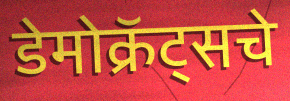
डेमोक्रॅट्सचे